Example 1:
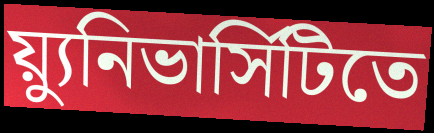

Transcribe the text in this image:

য়্যুনিভার্সিটিতে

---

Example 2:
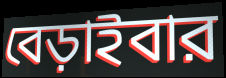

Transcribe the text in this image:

বেড়াইবার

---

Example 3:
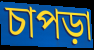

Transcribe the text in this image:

চাপড়া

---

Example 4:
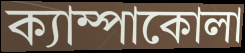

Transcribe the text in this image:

ক্যাম্পাকোলা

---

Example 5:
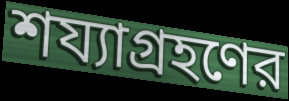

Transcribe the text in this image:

শয্যাগ্রহণের